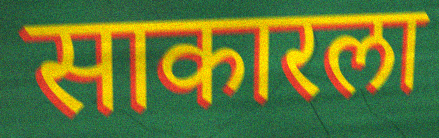
साकारला